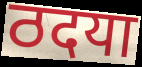
ठदया